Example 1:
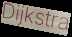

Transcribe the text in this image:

Dijkstra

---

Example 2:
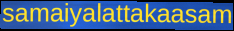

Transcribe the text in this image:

samaiyalattakaasam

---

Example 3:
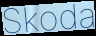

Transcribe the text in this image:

Skoda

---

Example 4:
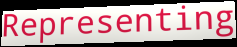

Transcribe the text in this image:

Representing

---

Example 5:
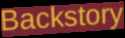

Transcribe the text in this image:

Backstory